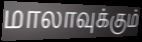
மாலாவுக்கும்